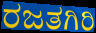
ರಜತಗಿರಿ